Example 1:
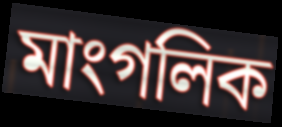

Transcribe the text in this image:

মাংগলিক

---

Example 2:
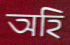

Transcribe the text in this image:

অহি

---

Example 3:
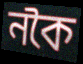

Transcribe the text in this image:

নকৈ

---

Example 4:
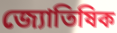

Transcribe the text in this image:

জ্যোতিষিক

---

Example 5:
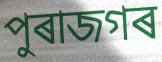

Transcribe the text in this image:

পুৰাজগৰ